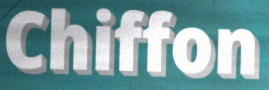
Chiffon